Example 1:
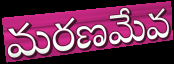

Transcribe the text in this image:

మరణమేవ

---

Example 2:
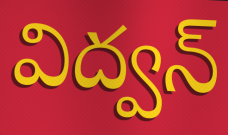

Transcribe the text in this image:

విద్వన్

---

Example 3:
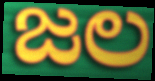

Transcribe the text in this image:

జల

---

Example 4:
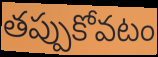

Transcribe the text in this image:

తప్పుకోవటం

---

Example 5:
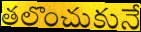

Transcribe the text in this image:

తలొంచుకునే